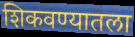
शिकवण्यातला